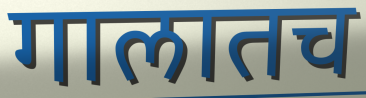
गालातच